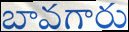
బావగారు